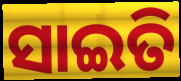
ସାଇତି